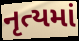
નૃત્યમાં